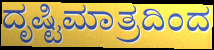
ದೃಷ್ಟಿಮಾತ್ರದಿಂದ